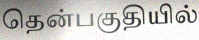
தென்பகுதியில்